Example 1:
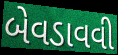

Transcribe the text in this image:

બેવડાવવી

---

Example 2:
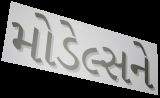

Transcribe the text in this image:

મોડેલ્સને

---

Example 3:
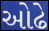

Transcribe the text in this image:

ઓઢે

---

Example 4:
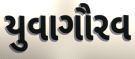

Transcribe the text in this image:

યુવાગૌરવ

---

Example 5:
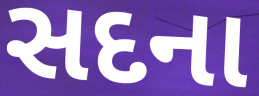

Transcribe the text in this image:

સદના